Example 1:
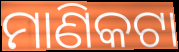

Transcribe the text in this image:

ମାଣିକଟା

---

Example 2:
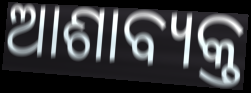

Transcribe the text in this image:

ଆଶାବ୍ୟକ୍ତ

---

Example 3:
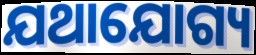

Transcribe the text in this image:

ଯଥାଯୋଗ୍ୟ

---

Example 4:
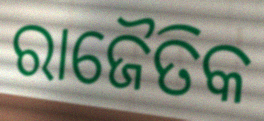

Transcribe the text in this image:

ରାଜୈତିକ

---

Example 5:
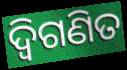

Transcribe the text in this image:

ଦ୍ୱିଗଣିତ